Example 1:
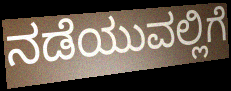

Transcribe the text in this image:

ನಡೆಯುವಲ್ಲಿಗೆ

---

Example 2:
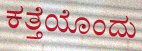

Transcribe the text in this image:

ಕತ್ತೆಯೊಂದು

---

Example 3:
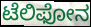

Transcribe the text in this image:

ಟೆಲಿಫೋನ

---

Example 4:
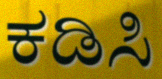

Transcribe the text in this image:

ಕಡಿಸಿ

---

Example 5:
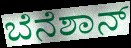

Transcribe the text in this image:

ಬೆನೆಶಾನ್